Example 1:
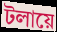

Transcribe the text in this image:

টলায়ে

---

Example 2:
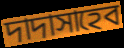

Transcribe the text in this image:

দাদাসাহেব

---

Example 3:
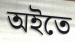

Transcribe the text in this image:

অইতে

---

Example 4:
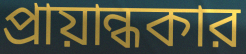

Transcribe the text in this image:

প্রায়ান্ধকার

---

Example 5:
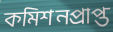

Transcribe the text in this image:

কমিশনপ্রাপ্ত